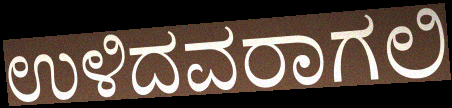
ಉಳಿದವರಾಗಲಿ